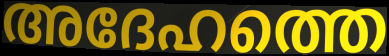
അദേഹത്തെ